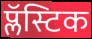
प्लॅस्टिक